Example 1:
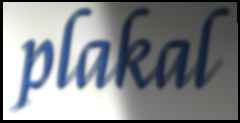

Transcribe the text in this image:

plakal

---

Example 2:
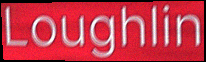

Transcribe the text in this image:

Loughlin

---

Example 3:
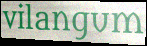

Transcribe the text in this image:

vilangum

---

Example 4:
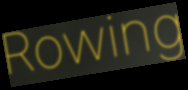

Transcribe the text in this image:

Rowing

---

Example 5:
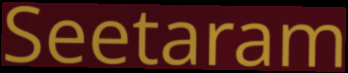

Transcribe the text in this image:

Seetaram